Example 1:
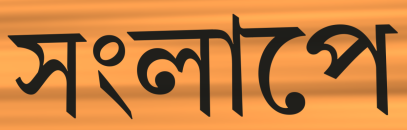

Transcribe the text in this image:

সংলাপে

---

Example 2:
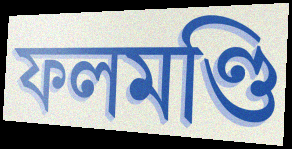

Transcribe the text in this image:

ফলমণ্ডি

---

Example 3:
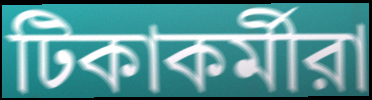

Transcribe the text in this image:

টিকাকর্মীরা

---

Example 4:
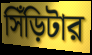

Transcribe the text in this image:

সিঁড়িটার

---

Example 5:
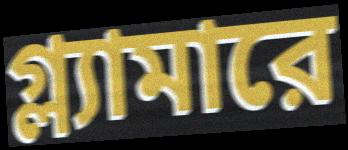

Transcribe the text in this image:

গ্ল্যামারে